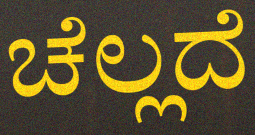
ಚೆಲ್ಲದೆ